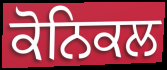
ਕੋਨਿਕਲ